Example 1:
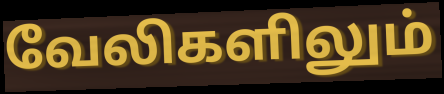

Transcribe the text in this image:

வேலிகளிலும்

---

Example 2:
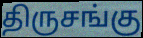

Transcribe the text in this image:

திருசங்கு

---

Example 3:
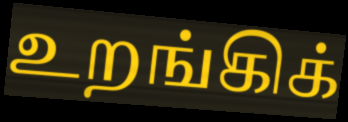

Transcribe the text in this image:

உறங்கிக்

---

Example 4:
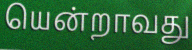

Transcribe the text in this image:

யென்றாவது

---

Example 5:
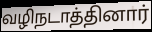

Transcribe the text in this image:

வழிநடாத்தினார்